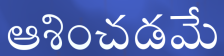
ఆశించడమే